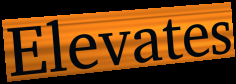
Elevates